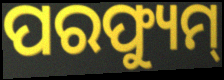
ପରଫ୍ୟୁମ୍